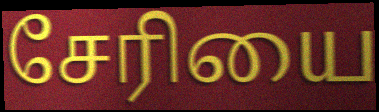
சேரியை